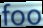
foo